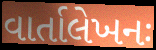
વાર્તાલેખનઃ